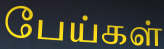
பேய்கள்